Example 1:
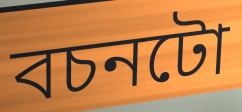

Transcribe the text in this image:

বচনটো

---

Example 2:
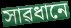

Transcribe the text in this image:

সাৱধানে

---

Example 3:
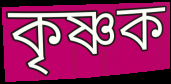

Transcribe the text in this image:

কৃষ্ণক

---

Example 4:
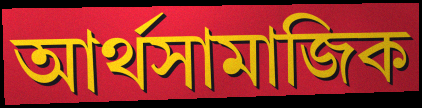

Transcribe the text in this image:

আৰ্থসামাজিক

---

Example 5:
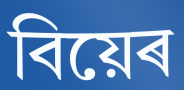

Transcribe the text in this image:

বিয়েৰ